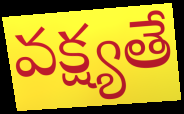
వక్ష్యతే